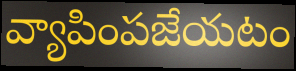
వ్యాపింపజేయటం